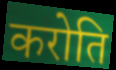
करोति